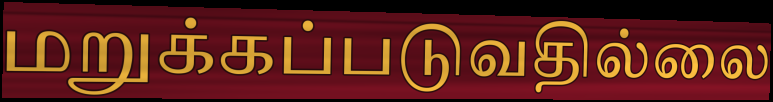
மறுக்கப்படுவதில்லை